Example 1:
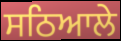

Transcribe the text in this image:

ਸਠਿਆਲੇ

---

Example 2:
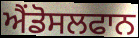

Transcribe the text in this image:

ਐਂਡੋਸਲਫਾਨ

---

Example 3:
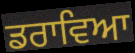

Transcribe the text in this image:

ਡਰਾਵਿਆ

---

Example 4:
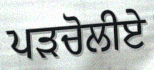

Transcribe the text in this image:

ਪੜਚੋਲੀਏ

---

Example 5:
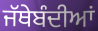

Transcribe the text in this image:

ਜੱਥੇਬੰਦੀਆਂ